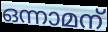
ഒന്നാമന്